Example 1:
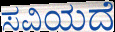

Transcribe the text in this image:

ಸವಿಯದೆ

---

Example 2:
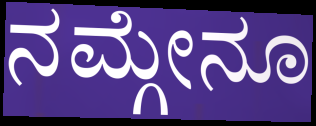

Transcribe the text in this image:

ನಮ್ಗೇನೂ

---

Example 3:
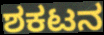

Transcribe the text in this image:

ಶಕಟನ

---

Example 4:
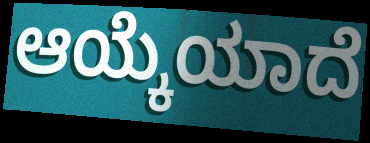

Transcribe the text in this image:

ಆಯ್ಕೆಯಾದೆ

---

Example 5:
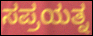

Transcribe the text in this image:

ಸಪ್ರಯತ್ನ